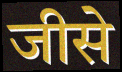
जीसे